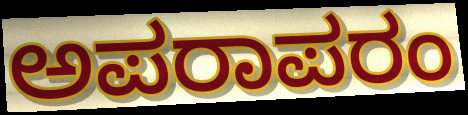
ಅಪರಾಪರಂ